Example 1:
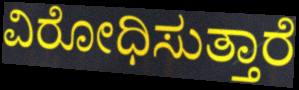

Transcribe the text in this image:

ವಿರೋಧಿಸುತ್ತಾರೆ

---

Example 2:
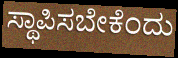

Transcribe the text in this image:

ಸ್ಥಾಪಿಸಬೇಕೆಂದು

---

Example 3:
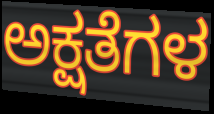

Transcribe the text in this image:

ಅಕ್ಷತೆಗಳ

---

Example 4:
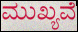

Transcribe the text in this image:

ಮುಖ್ಯವೆ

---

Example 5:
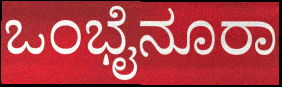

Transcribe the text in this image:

ಒಂಭೈನೂರಾ